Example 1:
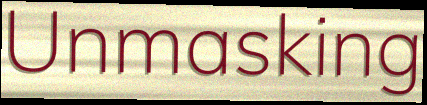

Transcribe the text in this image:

Unmasking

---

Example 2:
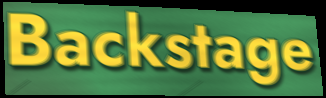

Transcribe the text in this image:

Backstage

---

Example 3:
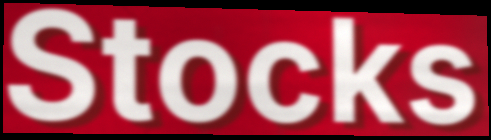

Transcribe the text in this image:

Stocks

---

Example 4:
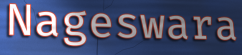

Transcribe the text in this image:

Nageswara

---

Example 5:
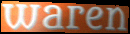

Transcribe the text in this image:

waren